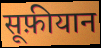
सूफ़ीयान